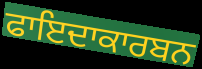
ਫਾਇਦਾਕਾਰਬਨ